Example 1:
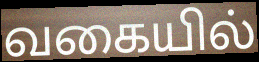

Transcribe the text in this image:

வகையில்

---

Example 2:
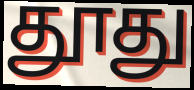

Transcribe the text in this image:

தூது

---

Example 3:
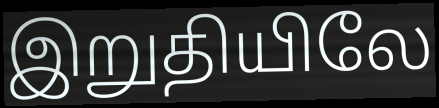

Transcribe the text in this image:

இறுதியிலே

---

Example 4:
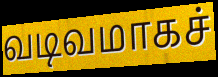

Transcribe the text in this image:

வடிவமாகச்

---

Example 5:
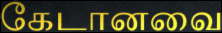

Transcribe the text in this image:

கேடானவை